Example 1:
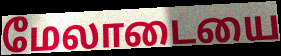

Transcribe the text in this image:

மேலாடையை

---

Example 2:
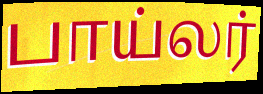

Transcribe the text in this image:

பாய்லர்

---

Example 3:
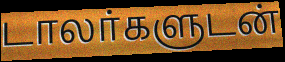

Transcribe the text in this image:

டாலர்களுடன்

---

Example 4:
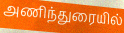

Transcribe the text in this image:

அணிந்துரையில்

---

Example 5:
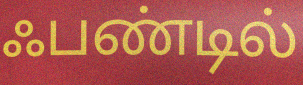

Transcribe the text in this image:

ஃபண்டில்